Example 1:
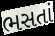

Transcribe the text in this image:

ભસતાં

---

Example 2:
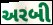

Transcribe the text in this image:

અરબી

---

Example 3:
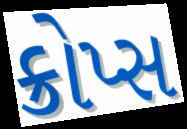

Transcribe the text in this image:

ક્રોપ્સ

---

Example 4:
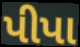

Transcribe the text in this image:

પીપા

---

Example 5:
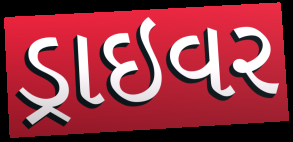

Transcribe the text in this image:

ડ્રાઇવર